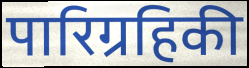
पारिग्रहिकी